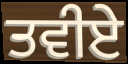
ਤਵੀਏ